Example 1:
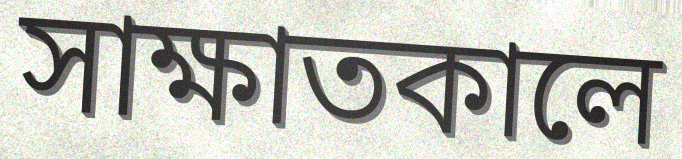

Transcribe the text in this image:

সাক্ষাতকালে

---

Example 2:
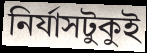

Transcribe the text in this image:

নির্যাসটুকুই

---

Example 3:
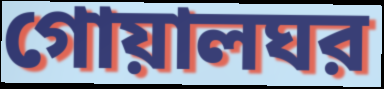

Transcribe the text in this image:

গোয়ালঘর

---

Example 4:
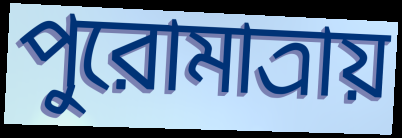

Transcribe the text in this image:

পুরোমাত্রায়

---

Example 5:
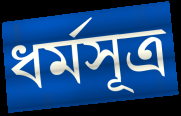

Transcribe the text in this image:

ধর্মসূত্র